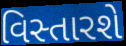
વિસ્તારશે